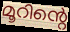
മൂറിന്റെ